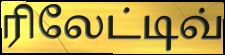
ரிலேட்டிவ்